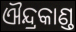
ଐନ୍ଦ୍ରକାଣ୍ଡ